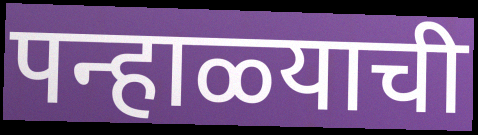
पन्हाळ्याची